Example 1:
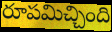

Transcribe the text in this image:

రూపమిచ్చింది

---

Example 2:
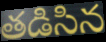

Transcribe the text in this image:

తడిసిన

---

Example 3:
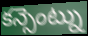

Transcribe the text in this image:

కన్సెంట్ను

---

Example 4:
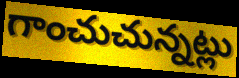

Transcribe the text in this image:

గాంచుచున్నట్లు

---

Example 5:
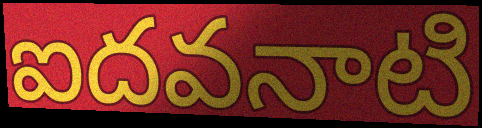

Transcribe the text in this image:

ఐదవనాటి